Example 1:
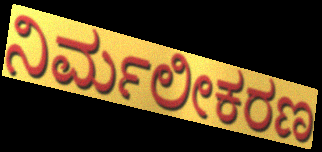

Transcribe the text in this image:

ನಿರ್ಮಲೀಕರಣ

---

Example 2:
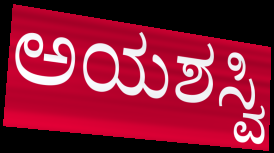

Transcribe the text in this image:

ಅಯಶಸ್ವಿ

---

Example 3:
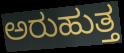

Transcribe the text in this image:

ಅರುಹುತ್ತ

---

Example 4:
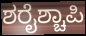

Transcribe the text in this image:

ಶರೈಶ್ಚಾಪಿ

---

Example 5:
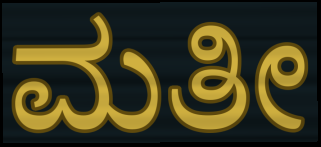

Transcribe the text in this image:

ಮತೀ